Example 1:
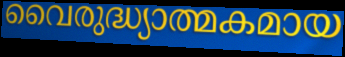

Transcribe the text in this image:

വൈരുദ്ധ്യാത്മകമായ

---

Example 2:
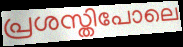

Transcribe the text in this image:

പ്രശസ്തിപോലെ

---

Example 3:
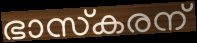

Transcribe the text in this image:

ഭാസ്‌കരന്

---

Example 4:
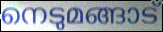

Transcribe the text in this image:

നെടുമങ്ങാട്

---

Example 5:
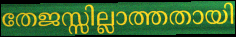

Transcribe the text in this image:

തേജസ്സില്ലാത്തതായി